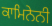
ਕਾਮਿਨੇਨੀ